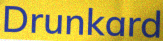
Drunkard